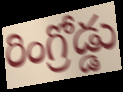
రింగ్రోడ్డు